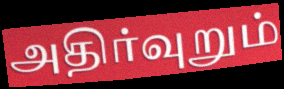
அதிர்வுறும்